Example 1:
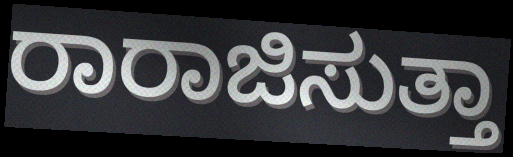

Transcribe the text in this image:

ರಾರಾಜಿಸುತ್ತಾ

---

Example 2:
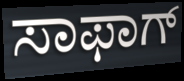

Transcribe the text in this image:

ಸಾಫಾಗ್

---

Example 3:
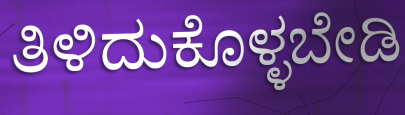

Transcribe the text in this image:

ತಿಳಿದುಕೊಳ್ಳಬೇಡಿ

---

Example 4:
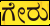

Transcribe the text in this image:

ಗೇರು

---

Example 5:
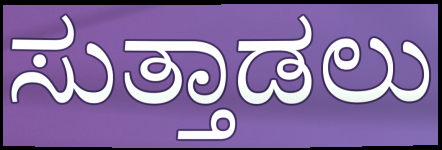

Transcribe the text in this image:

ಸುತ್ತಾಡಲು